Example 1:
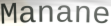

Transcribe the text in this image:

Manane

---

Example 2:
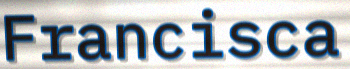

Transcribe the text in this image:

Francisca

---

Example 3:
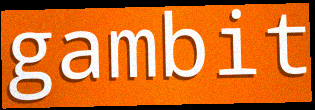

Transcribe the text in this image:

gambit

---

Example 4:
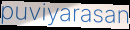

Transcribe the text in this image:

puviyarasan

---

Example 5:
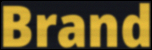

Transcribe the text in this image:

Brand